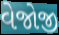
વેજોજી